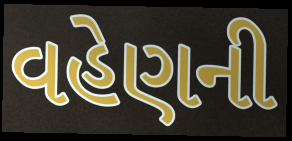
વહેણની